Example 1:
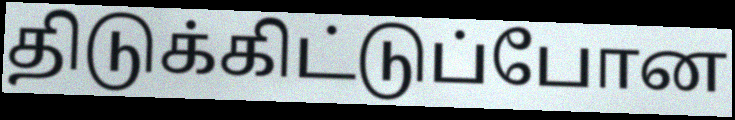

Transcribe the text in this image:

திடுக்கிட்டுப்போன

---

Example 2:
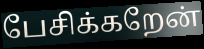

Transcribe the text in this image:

பேசிக்கறேன்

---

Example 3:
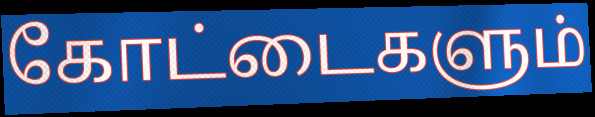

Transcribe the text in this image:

கோட்டைகளும்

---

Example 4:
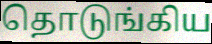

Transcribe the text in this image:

தொடுங்கிய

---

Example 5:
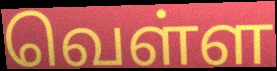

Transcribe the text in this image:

வெள்ள